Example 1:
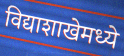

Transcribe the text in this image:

विद्याशाखेमध्ये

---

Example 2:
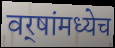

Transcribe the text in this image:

वर्षांमध्येच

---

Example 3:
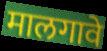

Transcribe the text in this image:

मालगावे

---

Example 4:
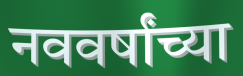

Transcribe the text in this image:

नववर्षांच्या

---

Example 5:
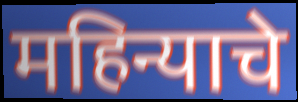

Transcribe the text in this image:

महिन्याचे